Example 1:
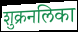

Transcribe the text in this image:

शुक्रनलिका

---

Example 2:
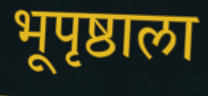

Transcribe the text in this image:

भूपृष्ठाला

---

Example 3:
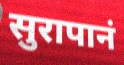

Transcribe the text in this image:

सुरापानं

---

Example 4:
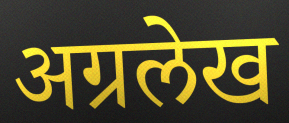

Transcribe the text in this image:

अग्रलेख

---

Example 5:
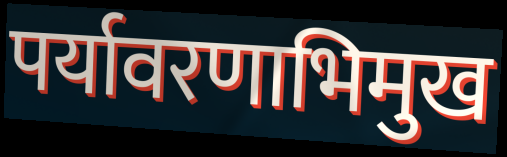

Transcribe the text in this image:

पर्यावरणाभिमुख